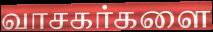
வாசகர்களை